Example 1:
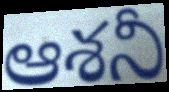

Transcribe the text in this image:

ఆశనీ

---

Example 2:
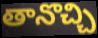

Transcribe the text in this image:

తానొచ్చి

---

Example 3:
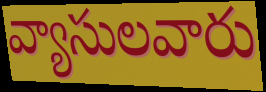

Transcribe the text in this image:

వ్యాసులవారు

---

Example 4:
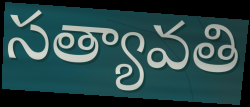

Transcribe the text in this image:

సత్యావతి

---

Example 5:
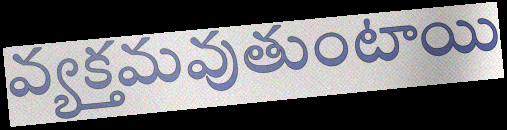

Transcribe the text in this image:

వ్యక్తమవుతుంటాయి